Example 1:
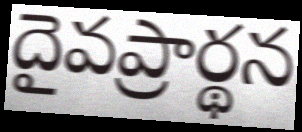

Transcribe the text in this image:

దైవప్రార్థన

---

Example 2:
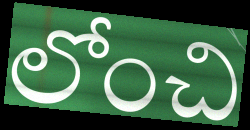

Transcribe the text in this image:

లోంచి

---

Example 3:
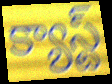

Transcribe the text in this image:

క్యాస్ట్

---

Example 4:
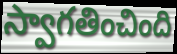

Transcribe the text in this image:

స్వాగతించింది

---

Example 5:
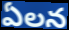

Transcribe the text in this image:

ఏలన